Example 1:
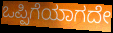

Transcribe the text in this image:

ಒಪ್ಪಿಗೆಯಾಗದೇ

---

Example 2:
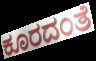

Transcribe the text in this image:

ಕೂರದಂತೆ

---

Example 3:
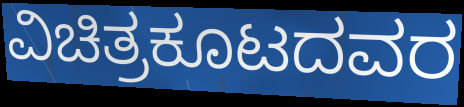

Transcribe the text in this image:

ವಿಚಿತ್ರಕೂಟದವರ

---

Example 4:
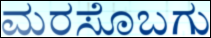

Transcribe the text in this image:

ಮರಸೊಬಗು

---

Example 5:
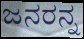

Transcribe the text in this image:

ಜನರನ್ನ